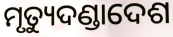
ମୃତ୍ୟୁଦଣ୍ଡାଦେଶ